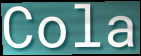
Cola